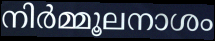
നിർമ്മൂലനാശം